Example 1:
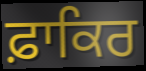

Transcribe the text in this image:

ਫ਼ਾਕਿਰ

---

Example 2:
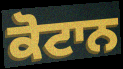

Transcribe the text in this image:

ਕੋਟਾਨ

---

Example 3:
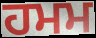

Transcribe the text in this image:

ਹਮਮ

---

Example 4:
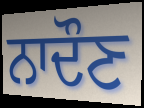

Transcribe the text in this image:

ਨਾਦੌਣ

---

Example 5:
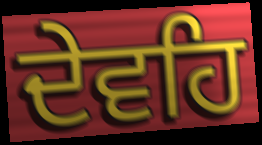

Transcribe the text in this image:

ਦੇਵਹਿ